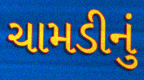
ચામડીનું